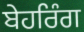
ਬੇਹਰਿੰਗ